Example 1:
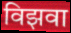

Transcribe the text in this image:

विझवा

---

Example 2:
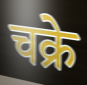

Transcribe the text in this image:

चक्रे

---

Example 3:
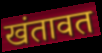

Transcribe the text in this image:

खंतावत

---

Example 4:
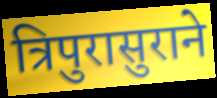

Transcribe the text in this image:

त्रिपुरासुराने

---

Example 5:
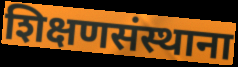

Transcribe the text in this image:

शिक्षणसंस्थाना